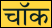
चॉक